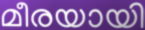
മീരയായി